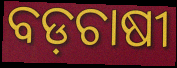
ବଡ଼ଚାଷୀ